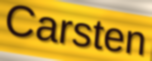
Carsten